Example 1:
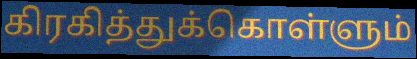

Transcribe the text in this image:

கிரகித்துக்கொள்ளும்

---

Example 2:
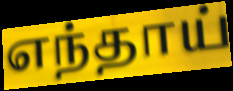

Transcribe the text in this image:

எந்தாய்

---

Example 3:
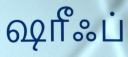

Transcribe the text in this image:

ஷரீஃப்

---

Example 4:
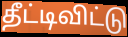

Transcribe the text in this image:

தீட்டிவிட்டு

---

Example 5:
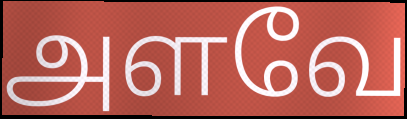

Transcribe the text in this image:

அளவே